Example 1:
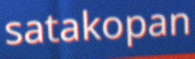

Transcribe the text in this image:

satakopan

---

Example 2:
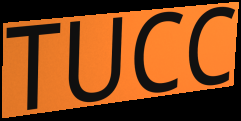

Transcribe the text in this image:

TUCC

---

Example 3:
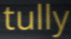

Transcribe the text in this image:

tully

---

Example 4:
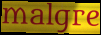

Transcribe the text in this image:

malgre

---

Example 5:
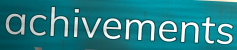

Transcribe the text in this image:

achivements